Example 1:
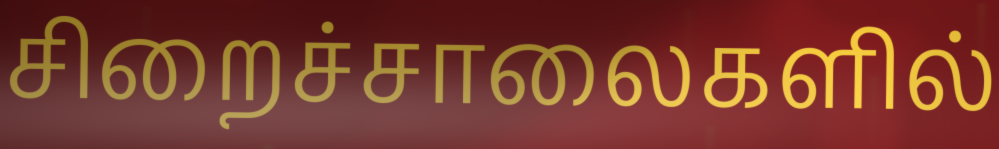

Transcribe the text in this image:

சிறைச்சாலைகளில்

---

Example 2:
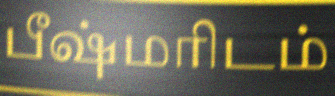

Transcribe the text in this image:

பீஷ்மரிடம்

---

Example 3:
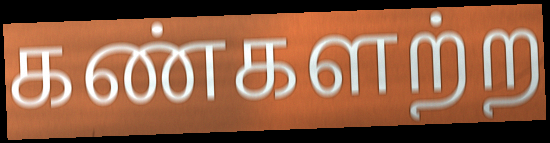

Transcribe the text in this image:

கண்களற்ற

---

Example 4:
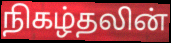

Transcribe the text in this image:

நிகழ்தலின்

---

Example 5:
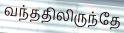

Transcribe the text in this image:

வந்ததிலிருந்தே